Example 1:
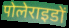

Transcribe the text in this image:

पोलेराइडों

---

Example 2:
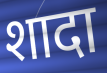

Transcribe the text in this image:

शादा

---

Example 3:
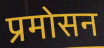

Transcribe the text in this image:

प्रमोसन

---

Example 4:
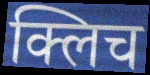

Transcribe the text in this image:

क्लिच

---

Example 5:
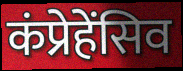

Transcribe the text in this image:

कंप्रेहेंसिव